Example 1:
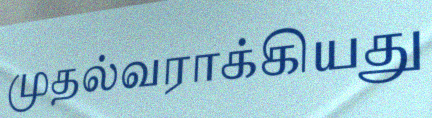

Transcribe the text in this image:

முதல்வராக்கியது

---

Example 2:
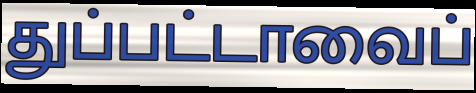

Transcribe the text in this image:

துப்பட்டாவைப்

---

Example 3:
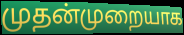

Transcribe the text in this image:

முதன்முறையாக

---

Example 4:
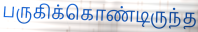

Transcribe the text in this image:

பருகிக்கொண்டிருந்த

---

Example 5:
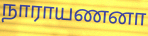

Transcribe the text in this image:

நாராயணனா